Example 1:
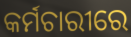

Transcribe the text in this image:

କର୍ମଚାରୀରେ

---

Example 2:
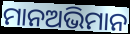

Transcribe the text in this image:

ମାନଅଭିମାନ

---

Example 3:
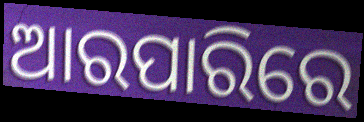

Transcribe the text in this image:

ଆରପାରିରେ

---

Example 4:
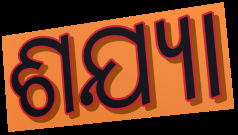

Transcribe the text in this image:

ଶଯ୍ୟା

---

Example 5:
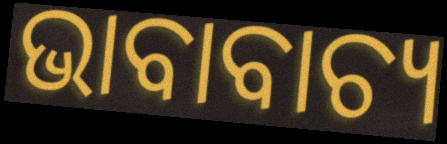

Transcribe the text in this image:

ଭାବାବାଚ୍ୟ